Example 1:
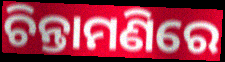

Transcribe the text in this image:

ଚିନ୍ତାମଣିରେ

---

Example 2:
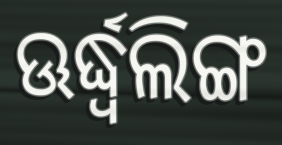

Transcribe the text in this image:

ଊର୍ଦ୍ଧ୍ୱଲିଙ୍ଗ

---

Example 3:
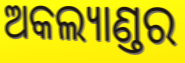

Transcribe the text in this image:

ଅକଲ୍ୟାଣ୍ଡର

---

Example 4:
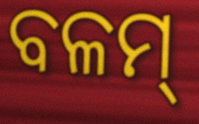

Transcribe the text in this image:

ବଳମ୍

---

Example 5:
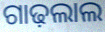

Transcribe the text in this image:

ଗାଢ଼ଲାଲ